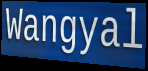
Wangyal